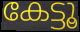
കേട്ടൂ